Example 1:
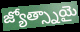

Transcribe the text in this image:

జ్యోత్స్నాయై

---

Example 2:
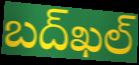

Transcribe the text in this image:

బద్‌ఖల్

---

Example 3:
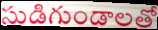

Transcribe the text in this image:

సుడిగుండాలతో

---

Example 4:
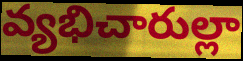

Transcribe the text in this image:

వ్యభిచారుల్లా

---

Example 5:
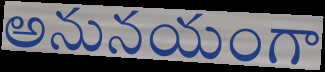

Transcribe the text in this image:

అనునయంగా